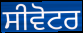
ਸੀਵੋਟਰ